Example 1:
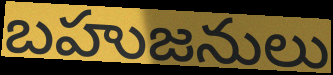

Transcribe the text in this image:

బహుజనులు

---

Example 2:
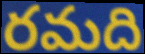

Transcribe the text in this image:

రమది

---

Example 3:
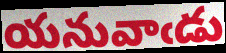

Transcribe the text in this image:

యనువాఁడు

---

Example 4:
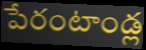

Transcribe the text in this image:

పేరంటాండ్ల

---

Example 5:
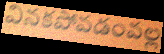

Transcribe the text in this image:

వినకపోవడంవల్ల